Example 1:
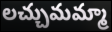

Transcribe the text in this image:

లచ్చుమమ్మా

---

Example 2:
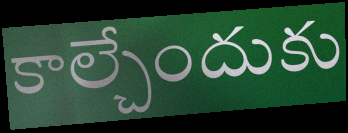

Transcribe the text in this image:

కాల్చేందుకు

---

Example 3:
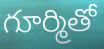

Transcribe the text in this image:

గూర్మితో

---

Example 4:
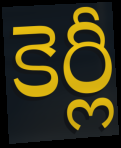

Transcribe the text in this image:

కెర్లీ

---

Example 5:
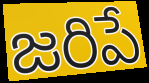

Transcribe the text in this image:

జరిపే